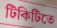
টিকিটিতে